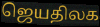
ஜெயதிலக